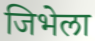
जिभेला